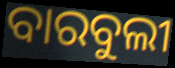
ବାରବୁଲୀ